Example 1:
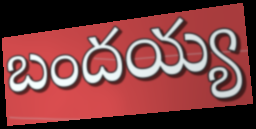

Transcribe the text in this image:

బందయ్య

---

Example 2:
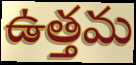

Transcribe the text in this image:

ఉత్తమ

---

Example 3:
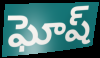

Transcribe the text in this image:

ఘోష్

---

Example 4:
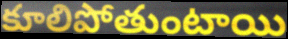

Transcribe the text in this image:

కూలిపోతుంటాయి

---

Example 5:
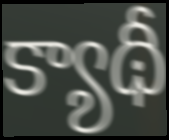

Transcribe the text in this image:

క్యాథీ